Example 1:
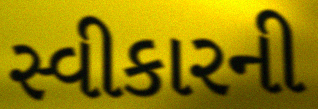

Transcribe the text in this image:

સ્વીકારની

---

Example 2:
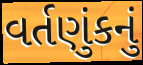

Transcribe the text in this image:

વર્તણુંકનું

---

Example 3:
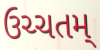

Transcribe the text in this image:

ઉચ્ચતમ્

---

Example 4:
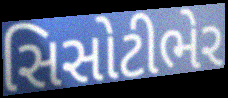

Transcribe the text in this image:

સિસોટીભેર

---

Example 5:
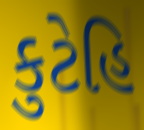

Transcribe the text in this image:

કુટેહિ